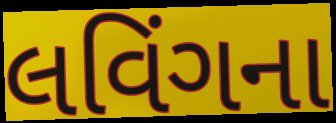
લવિંગના